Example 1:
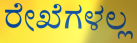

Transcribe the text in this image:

ರೇಖೆಗಳಲ್ಲ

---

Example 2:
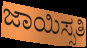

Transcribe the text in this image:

ಜಾಯಿಸ್ಸತಿ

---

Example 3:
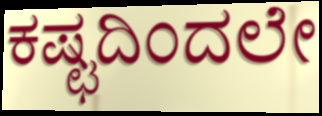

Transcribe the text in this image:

ಕಷ್ಟದಿಂದಲೇ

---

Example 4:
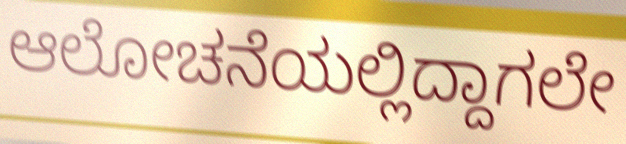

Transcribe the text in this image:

ಆಲೋಚನೆಯಲ್ಲಿದ್ದಾಗಲೇ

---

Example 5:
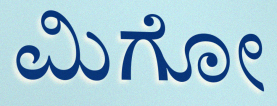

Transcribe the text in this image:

ಮಿಗೋ